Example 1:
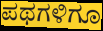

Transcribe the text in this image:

ಪಥಗಳಿಗೂ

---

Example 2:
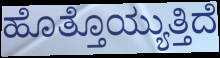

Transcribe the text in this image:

ಹೊತ್ತೊಯ್ಯುತ್ತಿದೆ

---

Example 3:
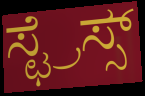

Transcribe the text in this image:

ಸ್ಟ್ರೆಸ್ಸ್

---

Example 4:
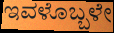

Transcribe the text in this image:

ಇವಳೊಬ್ಬಳೇ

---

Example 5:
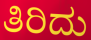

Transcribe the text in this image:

ತಿರಿದು